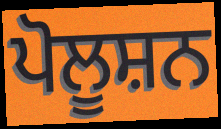
ਪੋਲੂਸ਼ਨ